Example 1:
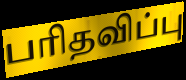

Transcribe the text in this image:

பரிதவிப்பு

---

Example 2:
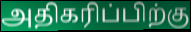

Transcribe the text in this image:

அதிகரிப்பிற்கு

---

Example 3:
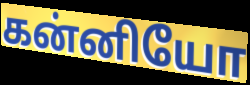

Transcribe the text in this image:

கன்னியோ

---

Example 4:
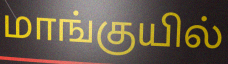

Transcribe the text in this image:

மாங்குயில்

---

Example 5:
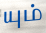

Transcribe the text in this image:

யும்